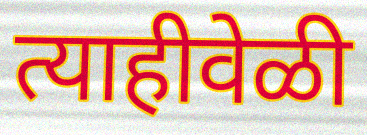
त्याहीवेळी